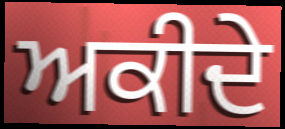
ਅਕੀਦੇ